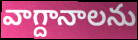
వాగ్దానాలను